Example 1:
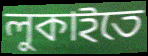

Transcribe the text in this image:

লুকাইতে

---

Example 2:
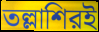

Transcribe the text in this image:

তল্লাশিরই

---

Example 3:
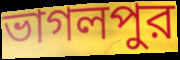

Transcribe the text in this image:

ভাগলপুর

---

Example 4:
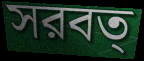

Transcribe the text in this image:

সরবত্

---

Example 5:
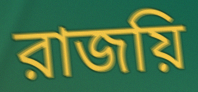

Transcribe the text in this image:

রাজয়ি